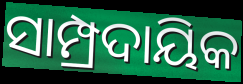
ସାମ୍ପ୍ରଦାୟିକ